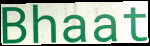
Bhaat